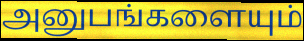
அனுபங்களையும்